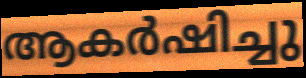
ആകർഷിച്ചു